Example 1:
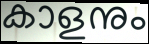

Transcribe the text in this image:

കാളനും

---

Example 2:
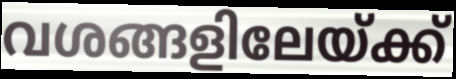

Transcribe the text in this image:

വശങ്ങളിലേയ്ക്ക്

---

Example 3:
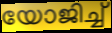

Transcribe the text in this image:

യോജിച്ച്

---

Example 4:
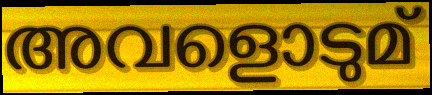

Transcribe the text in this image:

അവളൊടുമ്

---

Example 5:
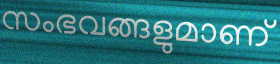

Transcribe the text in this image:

സംഭവങ്ങളുമാണ്